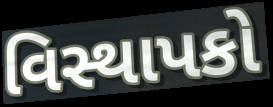
વિસ્થાપકો